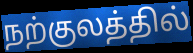
நற்குலத்தில்